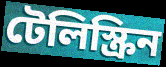
টেলিস্ক্রিন